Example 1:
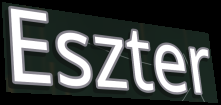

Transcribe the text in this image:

Eszter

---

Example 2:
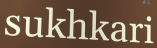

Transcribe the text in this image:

sukhkari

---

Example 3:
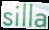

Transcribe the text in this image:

silla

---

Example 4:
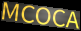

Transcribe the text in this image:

MCOCA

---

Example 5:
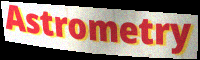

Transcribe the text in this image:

Astrometry